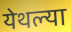
येथल्या